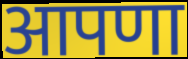
आपणा